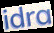
idra